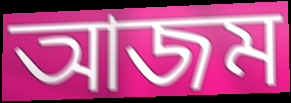
আজম